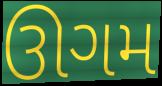
ઊગમ